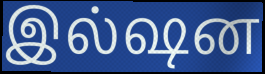
இல்ஷன